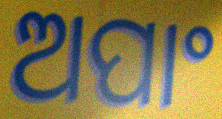
ଅପାଂ